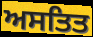
ਅਸਤਿਤ